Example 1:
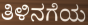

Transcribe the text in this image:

ತಿಳಿನಗೆಯ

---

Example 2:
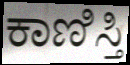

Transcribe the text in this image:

ಕಾಣಿಸ್ತಿ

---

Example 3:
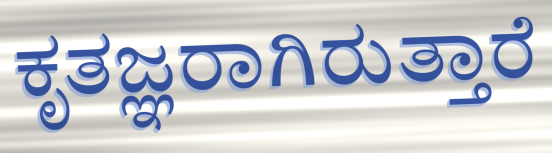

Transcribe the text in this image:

ಕೃತಜ್ಞರಾಗಿರುತ್ತಾರೆ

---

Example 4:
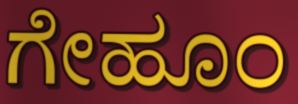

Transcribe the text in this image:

ಗೇಹೂಂ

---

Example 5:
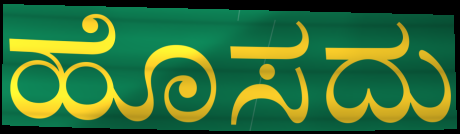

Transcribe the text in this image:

ಹೊಸದು